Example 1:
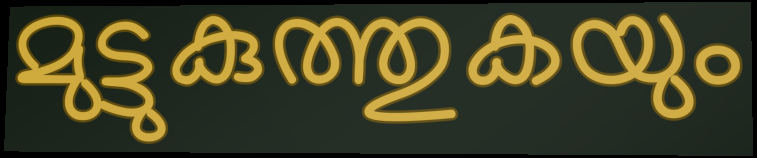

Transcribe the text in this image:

മുട്ടുകുത്തുകയും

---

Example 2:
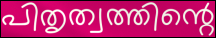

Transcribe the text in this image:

പിതൃത്വത്തിന്റെ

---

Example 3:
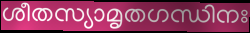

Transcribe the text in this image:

ശീതസ്യാമൃതഗന്ധിനഃ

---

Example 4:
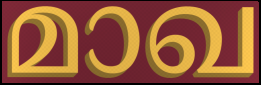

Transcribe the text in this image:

മാഖ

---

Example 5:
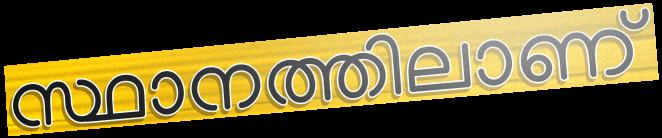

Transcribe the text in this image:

സ്ഥാനത്തിലാണ്